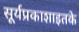
सूर्यप्रकाशाइतके